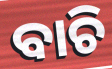
ବାଚି